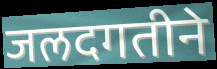
जलदगतीने